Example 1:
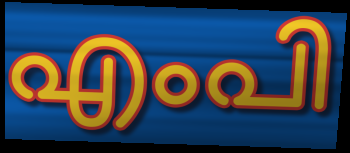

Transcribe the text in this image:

എംപി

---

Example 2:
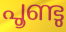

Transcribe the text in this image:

പൂണ്ടു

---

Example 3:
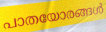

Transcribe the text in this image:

പാതയോരങ്ങൾ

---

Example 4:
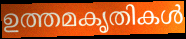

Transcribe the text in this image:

ഉത്തമകൃതികൾ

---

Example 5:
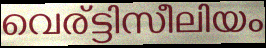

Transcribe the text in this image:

വെര്ട്ടിസീലിയം